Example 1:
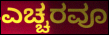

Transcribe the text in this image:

ಎಚ್ಚರವೂ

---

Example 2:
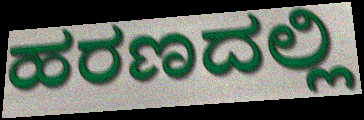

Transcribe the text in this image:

ಹರಣದಲ್ಲಿ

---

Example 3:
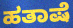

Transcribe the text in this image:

ಹತಾಷೆ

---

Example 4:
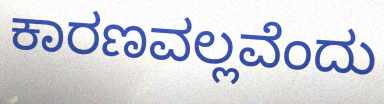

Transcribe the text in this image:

ಕಾರಣವಲ್ಲವೆಂದು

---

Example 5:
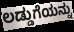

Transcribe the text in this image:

ಲಡ್ಡುಗೆಯನ್ನು